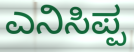
ಎನಿಸಿಪ್ಪ